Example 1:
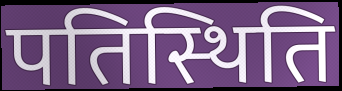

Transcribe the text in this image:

पतिस्थिति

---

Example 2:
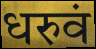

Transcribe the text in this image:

धरुवं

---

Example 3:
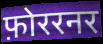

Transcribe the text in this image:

फ़ोररनर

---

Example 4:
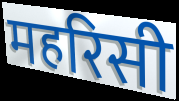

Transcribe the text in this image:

महरिसी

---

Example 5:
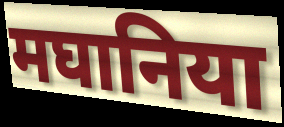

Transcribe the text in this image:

मघानिया